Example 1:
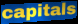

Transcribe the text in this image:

capitals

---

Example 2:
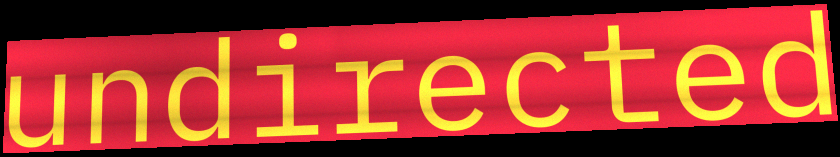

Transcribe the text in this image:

undirected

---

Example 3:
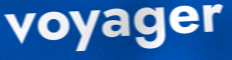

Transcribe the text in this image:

voyager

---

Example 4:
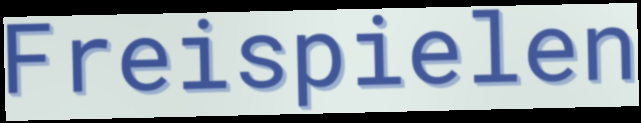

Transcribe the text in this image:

Freispielen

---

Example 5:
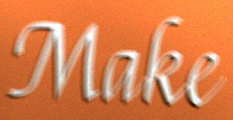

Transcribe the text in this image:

Make